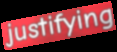
justifying